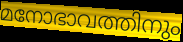
മനോഭാവത്തിനും